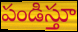
పండిస్తూ